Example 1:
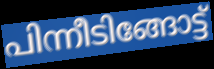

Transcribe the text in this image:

പിന്നീടിങ്ങോട്ട്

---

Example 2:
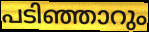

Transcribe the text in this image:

പടിഞ്ഞാറും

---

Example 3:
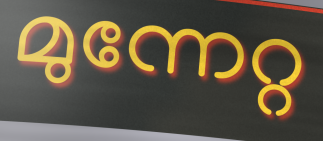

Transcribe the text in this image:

മുന്നേറ്റ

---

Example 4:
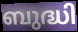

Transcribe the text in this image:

ബുദ്ധി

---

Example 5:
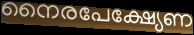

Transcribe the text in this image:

നൈരപേക്ഷ്യേണ